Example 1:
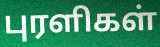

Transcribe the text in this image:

புரளிகள்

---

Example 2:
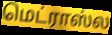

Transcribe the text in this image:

மெட்ராஸ்ல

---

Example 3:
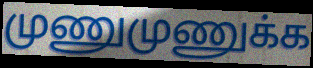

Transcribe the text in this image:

முணுமுணுக்க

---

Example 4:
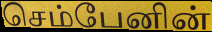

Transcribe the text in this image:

செம்பேனின்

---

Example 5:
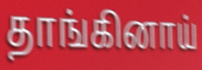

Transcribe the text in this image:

தாங்கினாய்